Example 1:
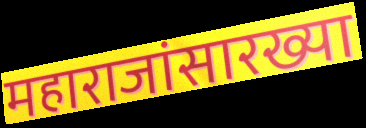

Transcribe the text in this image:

महाराजांसारख्या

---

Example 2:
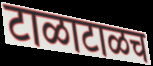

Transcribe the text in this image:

टाळाटाळच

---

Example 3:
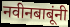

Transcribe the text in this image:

नवीनबाबूंनी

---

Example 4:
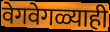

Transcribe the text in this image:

वेगवेगळ्याही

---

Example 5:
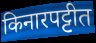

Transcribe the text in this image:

किनारपट्टीत